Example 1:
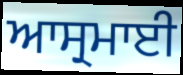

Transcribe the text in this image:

ਆਸ੍ਰਮਾਈ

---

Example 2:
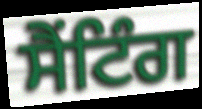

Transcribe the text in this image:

ਸੈਂਟਿੰਗ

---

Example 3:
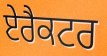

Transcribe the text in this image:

ਏਰੈਕਟਰ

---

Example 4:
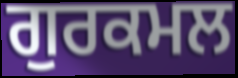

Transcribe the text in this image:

ਗੁਰਕਮਲ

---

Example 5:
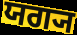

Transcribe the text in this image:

ਯਗ੍ਯ